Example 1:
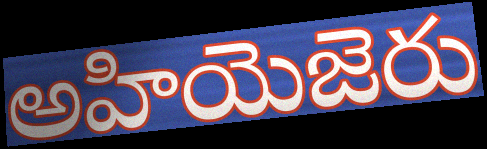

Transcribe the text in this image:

అహియెజెరు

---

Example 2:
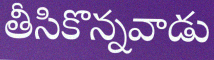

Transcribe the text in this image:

తీసికొన్నవాడు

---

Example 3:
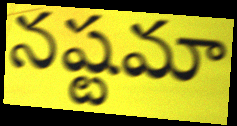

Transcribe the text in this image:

నష్టమా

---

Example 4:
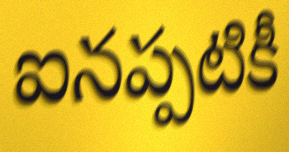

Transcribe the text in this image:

ఐనప్పటికీ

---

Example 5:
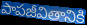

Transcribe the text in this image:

పాపజీవితానికి